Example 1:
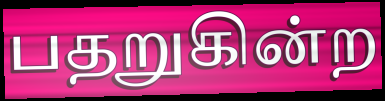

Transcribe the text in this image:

பதறுகின்ற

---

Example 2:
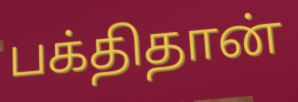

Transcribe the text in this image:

பக்திதான்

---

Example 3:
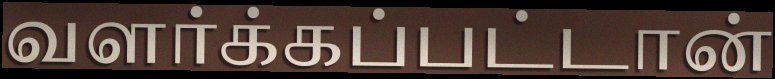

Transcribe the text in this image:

வளர்க்கப்பட்டான்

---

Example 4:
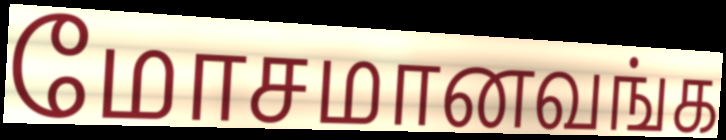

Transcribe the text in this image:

மோசமானவங்க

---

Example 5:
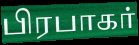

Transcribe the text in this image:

பிரபாகர்